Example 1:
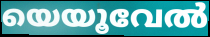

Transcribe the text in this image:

യെയൂവേൽ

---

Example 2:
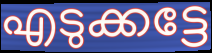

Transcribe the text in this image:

എടുക്കട്ടേ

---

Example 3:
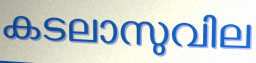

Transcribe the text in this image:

കടലാസുവില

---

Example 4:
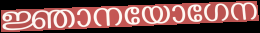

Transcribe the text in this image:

ജ്ഞാനയോഗേന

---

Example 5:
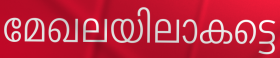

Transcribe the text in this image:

മേഖലയിലാകട്ടെ